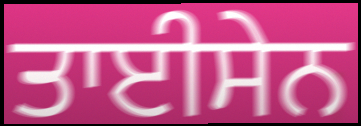
ਤਾਈਸੇਨ